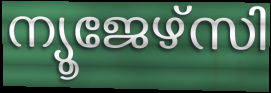
ന്യൂജേഴ്സി